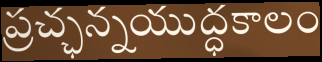
ప్రచ్ఛన్నయుద్ధకాలం